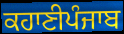
ਕਹਾਣੀਪੰਜਾਬ